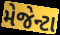
મેજેન્ટા